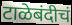
टाळेबंदीचं